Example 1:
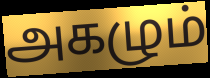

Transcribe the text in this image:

அகழும்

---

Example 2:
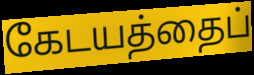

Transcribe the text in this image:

கேடயத்தைப்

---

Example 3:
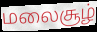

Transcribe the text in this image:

மலைசூழ்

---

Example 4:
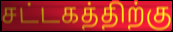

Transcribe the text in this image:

சட்டகத்திற்கு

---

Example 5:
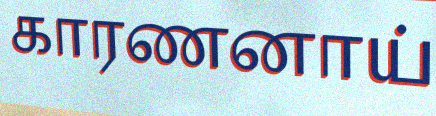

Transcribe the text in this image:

காரணனாய்